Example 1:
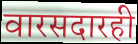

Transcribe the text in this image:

वारसदारही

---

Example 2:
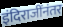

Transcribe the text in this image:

इंदिराजींनंतर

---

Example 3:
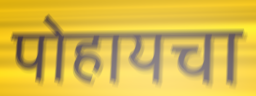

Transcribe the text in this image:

पोहायचा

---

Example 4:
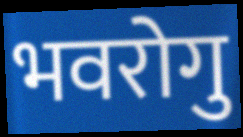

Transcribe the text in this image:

भवरोगु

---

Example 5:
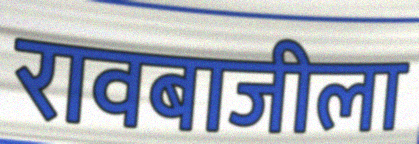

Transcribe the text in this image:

रावबाजीला